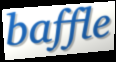
baffle